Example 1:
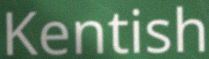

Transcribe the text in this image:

Kentish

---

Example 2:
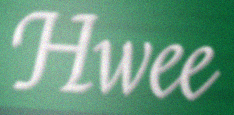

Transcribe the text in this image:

Hwee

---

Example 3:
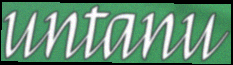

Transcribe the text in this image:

untanu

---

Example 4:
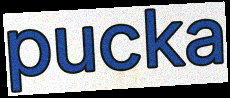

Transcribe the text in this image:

pucka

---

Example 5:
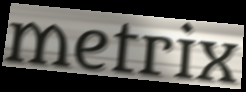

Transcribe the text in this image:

metrix